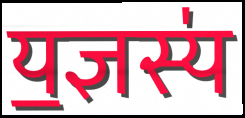
य॒ज्ञस्य॑